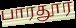
பாரதூர